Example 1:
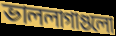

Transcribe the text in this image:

ভাললাগাগুলো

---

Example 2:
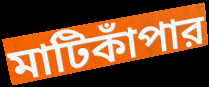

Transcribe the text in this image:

মাটিকাঁপার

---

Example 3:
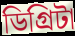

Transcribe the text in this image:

ডিগ্রিটা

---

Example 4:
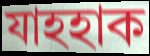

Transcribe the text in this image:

যাহহাক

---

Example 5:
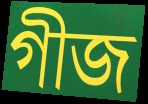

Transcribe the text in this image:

গীজ